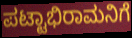
ಪಟ್ಟಾಭಿರಾಮನಿಗೆ